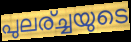
പുലര്ച്ചയുടെ